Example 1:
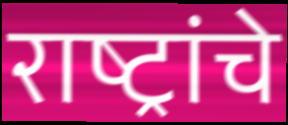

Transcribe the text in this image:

राष्ट्रांचे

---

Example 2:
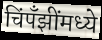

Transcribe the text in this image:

चिंपँझींमध्ये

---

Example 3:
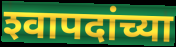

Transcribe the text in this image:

श्‍वापदांच्या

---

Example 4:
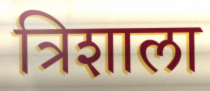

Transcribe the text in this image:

त्रिशाला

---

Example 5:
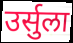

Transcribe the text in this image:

उर्सुला